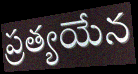
ప్రత్యయేన